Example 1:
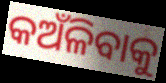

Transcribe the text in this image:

କଅଁଳିବାକୁ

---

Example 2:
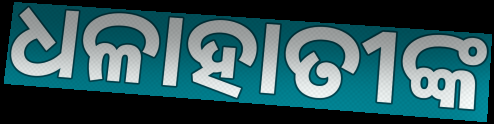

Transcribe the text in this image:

ଧଳାହାତୀଙ୍କ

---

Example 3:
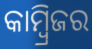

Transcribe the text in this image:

କାମ୍ବ୍ରିଜର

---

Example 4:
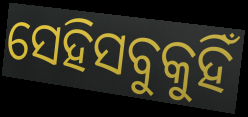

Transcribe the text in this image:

ସେହିସବୁକୁହିଁ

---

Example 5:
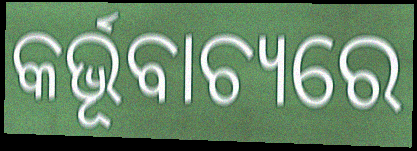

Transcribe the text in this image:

କର୍ଭୂବାଚ୍ୟରେ